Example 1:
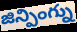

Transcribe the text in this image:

జిన్పింగ్ను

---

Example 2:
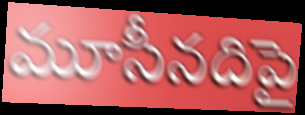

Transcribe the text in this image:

మూసీనదిపై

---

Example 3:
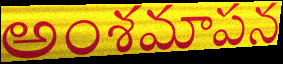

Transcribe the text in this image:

అంశమాపన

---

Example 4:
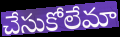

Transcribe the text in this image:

చేసుకోలేమా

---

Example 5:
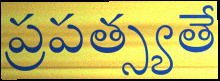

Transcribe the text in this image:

ప్రపత్స్యతే